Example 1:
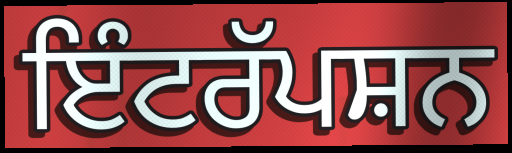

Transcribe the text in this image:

ਇੰਟਰੱਪਸ਼ਨ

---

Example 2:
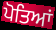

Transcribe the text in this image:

ਪੋਤਿਆਂ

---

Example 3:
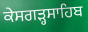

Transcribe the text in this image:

ਕੇਸਗੜ੍ਹਸਾਹਿਬ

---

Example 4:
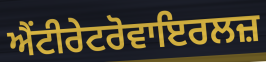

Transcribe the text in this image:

ਐਂਟੀਰੇਟਰੋਵਾਇਰਲਜ਼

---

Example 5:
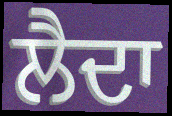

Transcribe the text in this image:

ਲੈਦਾ